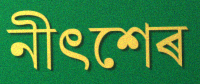
নীৎশেৰ